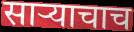
साऱ्याचाच